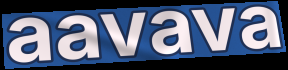
aavava